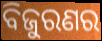
ବିଜୁରଣର